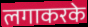
लगाकरके